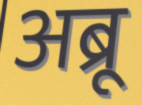
अब्रू